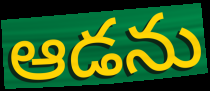
ఆడను